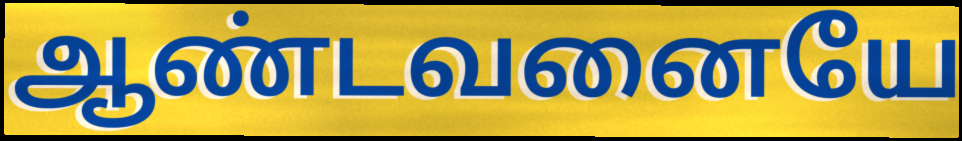
ஆண்டவனையே